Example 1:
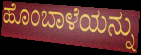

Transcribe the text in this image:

ಹೊಂಬಾಳೆಯನ್ನು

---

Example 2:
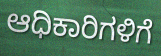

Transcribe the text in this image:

ಆಧಿಕಾರಿಗಳಿಗೆ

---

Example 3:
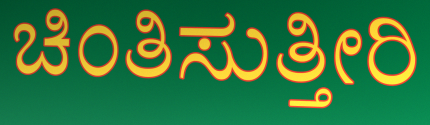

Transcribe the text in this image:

ಚಿಂತಿಸುತ್ತೀರಿ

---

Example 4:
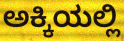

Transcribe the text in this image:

ಅಕ್ಕಿಯಲ್ಲಿ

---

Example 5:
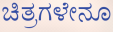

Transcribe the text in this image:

ಚಿತ್ರಗಳೇನೂ